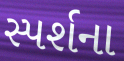
સ્પર્શના